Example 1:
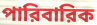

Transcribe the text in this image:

পারিবারিক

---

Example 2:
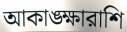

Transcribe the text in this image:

আকাঙ্ক্ষারাশি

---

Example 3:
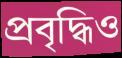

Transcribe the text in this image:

প্রবৃদ্ধিও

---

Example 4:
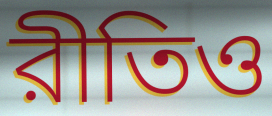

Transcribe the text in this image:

রীতিও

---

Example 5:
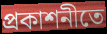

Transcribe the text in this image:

প্রকাশনীতে